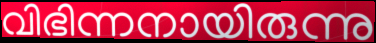
വിഭിന്നനായിരുന്നു